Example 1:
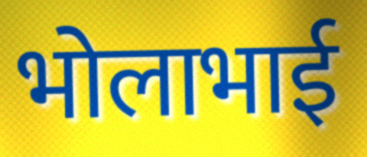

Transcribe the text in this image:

भोलाभाई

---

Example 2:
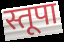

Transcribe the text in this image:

स्तूपा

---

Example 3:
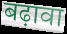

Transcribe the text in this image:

बढ़ावा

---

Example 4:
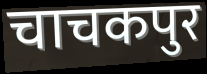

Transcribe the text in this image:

चाचकपुर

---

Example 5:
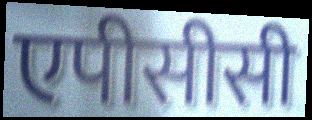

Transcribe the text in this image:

एपीसीसी